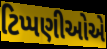
ટિપ્પણીઓએ